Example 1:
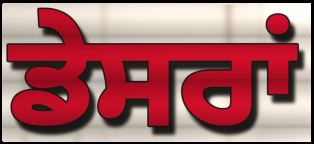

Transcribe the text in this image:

ਡੇਸਰਾਂ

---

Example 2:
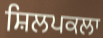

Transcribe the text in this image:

ਸ਼ਿਲਪਕਲਾ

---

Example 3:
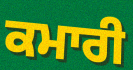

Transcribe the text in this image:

ਕਮਾਰੀ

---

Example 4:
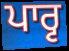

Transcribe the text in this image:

ਪਾਰ੍ਟ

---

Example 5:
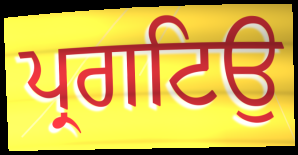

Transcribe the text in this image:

ਪ੍ਰਗਟਿਉ